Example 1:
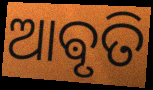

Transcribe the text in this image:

ଆଵୃତି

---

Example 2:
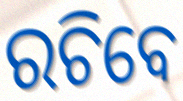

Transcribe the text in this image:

ରଚିବେ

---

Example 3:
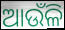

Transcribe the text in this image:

ଆଉଁଳି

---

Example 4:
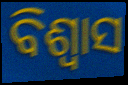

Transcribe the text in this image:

ବିଶ୍ଵାସ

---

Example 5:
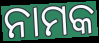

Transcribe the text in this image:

ନାମକ